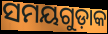
ସମୟଗୁଡ଼ାକ